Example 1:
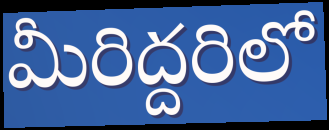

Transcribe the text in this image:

మీరిద్దరిలో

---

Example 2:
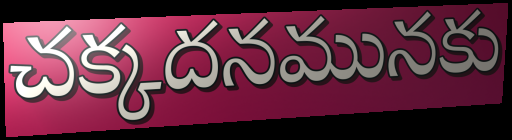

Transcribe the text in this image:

చక్కదనమునకు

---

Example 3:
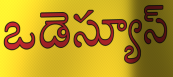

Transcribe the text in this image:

ఒడెస్యూస్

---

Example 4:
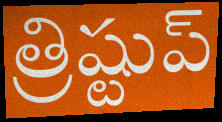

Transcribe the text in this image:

త్రిష్టుప్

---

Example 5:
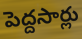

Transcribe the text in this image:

పెద్దసార్లు